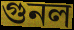
গুনল